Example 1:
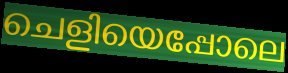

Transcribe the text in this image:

ചെളിയെപ്പോലെ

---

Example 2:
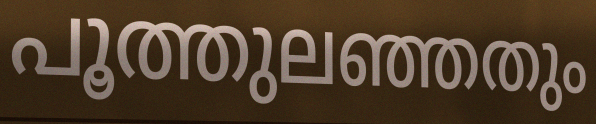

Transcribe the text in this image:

പൂത്തുലഞ്ഞതും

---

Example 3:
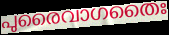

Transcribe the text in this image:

പുരൈവാഗതൈഃ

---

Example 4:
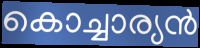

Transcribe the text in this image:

കൊച്ചാര്യൻ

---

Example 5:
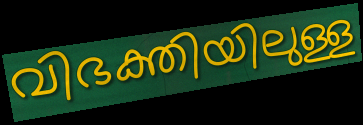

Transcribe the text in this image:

വിഭക്തിയിലുള്ള